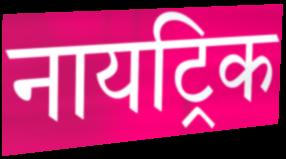
नायट्रिक